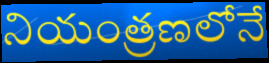
నియంత్రణలోనే